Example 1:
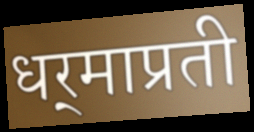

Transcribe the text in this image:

धर्माप्रती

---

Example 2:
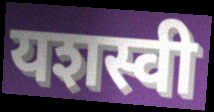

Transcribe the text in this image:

यशस्वी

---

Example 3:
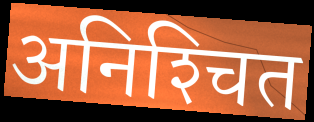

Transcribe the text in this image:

अनिश्चित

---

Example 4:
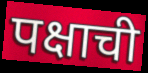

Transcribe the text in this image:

पक्षाची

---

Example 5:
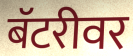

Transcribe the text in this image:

बॅटरीवर